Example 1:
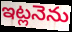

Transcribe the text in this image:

ఇట్లనెను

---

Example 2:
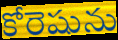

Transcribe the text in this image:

కోరెషును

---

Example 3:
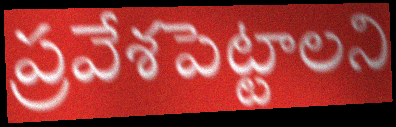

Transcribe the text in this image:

ప్రవేశపెట్టాలని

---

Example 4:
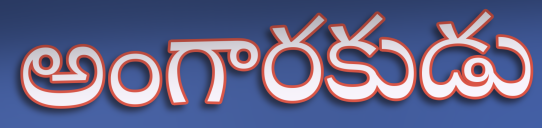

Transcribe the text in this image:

అంగారకుడు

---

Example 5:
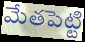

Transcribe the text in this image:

మేతపెట్టి